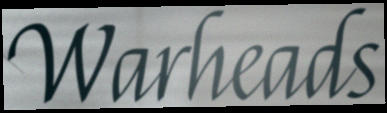
Warheads